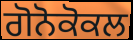
ਗੋਨੋਕੋਕਲ